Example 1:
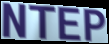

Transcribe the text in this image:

NTEP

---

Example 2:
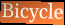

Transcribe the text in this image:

Bicycle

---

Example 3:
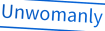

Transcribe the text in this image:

Unwomanly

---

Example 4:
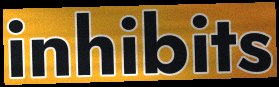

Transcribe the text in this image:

inhibits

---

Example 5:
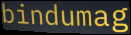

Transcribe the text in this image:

bindumag